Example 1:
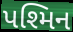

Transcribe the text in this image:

પશ્મિન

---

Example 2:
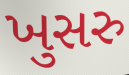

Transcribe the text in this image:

ખુસરુ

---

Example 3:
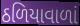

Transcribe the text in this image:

ઠળિયાવાળાં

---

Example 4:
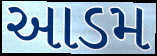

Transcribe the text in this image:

આડમ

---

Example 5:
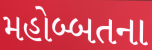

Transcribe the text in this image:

મહોબ્બતના